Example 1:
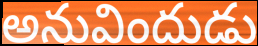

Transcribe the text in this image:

అనువిందుడు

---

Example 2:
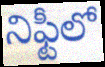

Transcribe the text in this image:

నిఫ్టీలో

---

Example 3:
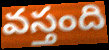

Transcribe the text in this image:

వస్తంది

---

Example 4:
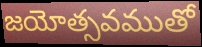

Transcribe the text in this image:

జయోత్సవముతో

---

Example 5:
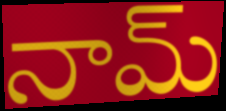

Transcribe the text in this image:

నామ్